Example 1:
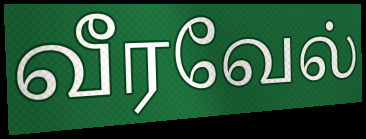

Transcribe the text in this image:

வீரவேல்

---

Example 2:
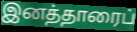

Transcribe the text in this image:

இனத்தாரைப்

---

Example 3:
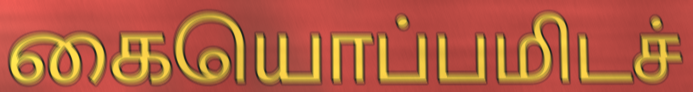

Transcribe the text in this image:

கையொப்பமிடச்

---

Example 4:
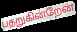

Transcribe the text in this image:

பதறுகின்றேன்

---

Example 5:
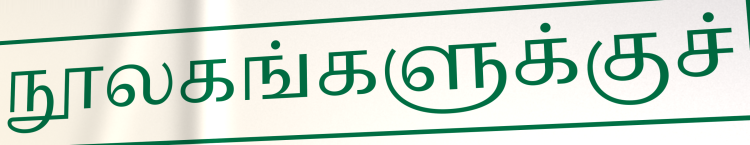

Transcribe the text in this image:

நூலகங்களுக்குச்